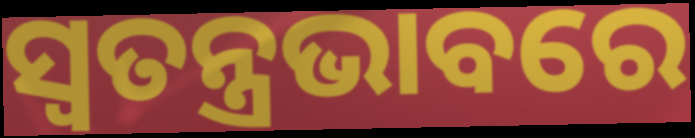
ସ୍ଵତନ୍ତ୍ରଭାବରେ